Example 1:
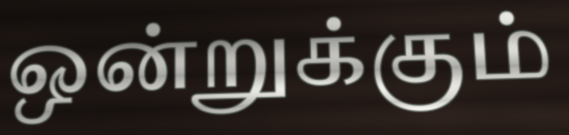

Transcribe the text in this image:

ஒன்றுக்கும்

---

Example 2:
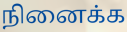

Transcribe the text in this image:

நினைக்க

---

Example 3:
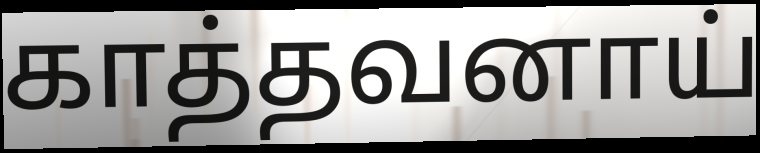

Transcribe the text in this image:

காத்தவனாய்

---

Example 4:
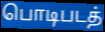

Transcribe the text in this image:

பொடிபடத்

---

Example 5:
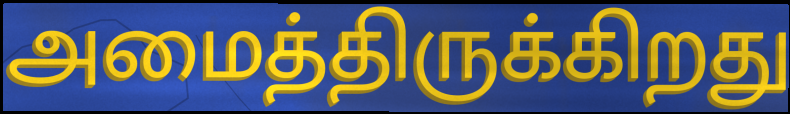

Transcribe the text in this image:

அமைத்திருக்கிறது